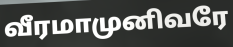
வீரமாமுனிவரே